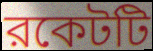
রকেটটি